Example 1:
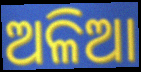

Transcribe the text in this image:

ଅଳିଆ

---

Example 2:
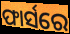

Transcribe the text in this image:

ଫାର୍ସରେ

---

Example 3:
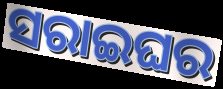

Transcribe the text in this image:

ସରାଇଘର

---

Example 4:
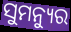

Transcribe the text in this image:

ସୁମନ୍ୟୁର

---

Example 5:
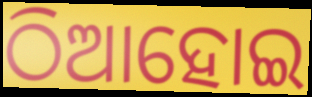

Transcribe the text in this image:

ଠିଆହୋଇ